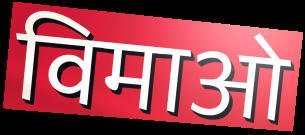
विमाओ